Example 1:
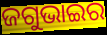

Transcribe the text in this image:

ଜଗୁଭାଇର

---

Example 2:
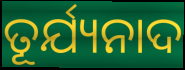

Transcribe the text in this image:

ତୂର୍ଯ୍ୟନାଦ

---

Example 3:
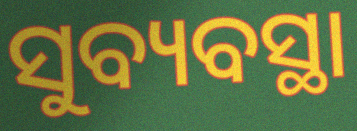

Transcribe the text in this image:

ସୁବ୍ୟବସ୍ଥା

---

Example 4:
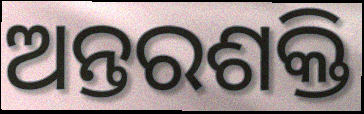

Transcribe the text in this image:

ଅନ୍ତରଶକ୍ତି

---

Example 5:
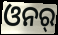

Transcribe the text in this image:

ଓନର୍